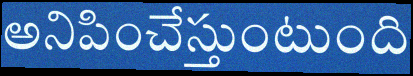
అనిపించేస్తుంటుంది